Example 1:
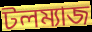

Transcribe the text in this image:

টলম্যাজ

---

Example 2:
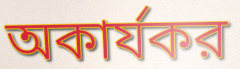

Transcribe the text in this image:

অকার্যকর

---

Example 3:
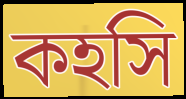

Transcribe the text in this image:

কহসি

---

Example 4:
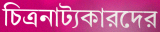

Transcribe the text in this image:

চিত্রনাট্যকারদের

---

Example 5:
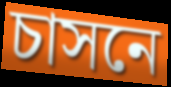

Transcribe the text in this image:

চাসনে